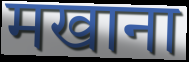
मखाना